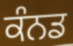
ਕੰਨਡ